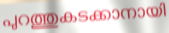
പുറത്തുകടക്കാനായി